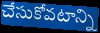
చేసుకోవటాన్ని